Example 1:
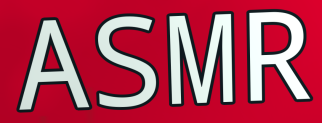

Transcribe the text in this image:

ASMR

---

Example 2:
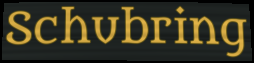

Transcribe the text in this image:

Schubring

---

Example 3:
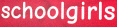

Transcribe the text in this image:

schoolgirls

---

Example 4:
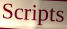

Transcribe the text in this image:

Scripts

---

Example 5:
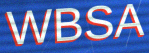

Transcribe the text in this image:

WBSA